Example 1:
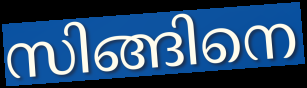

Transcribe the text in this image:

സിങ്ങിനെ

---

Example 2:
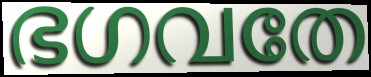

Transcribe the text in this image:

ഭഗവതേ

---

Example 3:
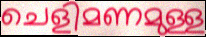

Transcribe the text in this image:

ചെളിമണമുള്ള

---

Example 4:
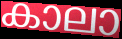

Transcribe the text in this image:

കാലാ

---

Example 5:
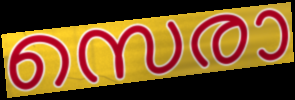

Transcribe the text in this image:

സെരാ